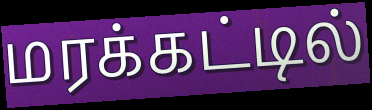
மரக்கட்டில்